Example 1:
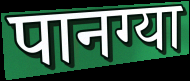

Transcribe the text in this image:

पानग्या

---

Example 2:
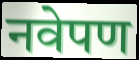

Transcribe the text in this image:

नवेपण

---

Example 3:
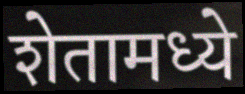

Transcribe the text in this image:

शेतामध्ये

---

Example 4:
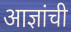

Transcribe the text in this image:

आज्ञांची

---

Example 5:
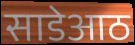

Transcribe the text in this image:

साडेआठ